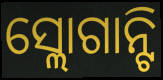
ସ୍ଲୋଗାନ୍ଟି